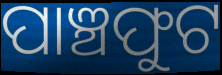
ପାଞ୍ଚଫୁଟ